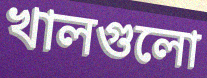
খালগুলো